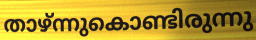
താഴ്ന്നുകൊണ്ടിരുന്നു